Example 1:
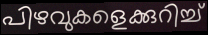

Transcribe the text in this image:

പിഴവുകളെക്കുറിച്ച്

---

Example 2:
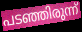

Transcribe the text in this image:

പടഞ്ഞിരുന്ന്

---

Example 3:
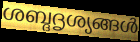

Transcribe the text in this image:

ശബ്ദദൃശ്യങ്ങൾ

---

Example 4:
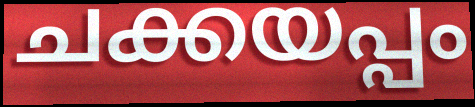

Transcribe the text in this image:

ചക്കയപ്പം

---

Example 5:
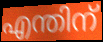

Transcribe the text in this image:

എന്തിന്